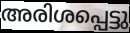
അരിശപ്പെട്ടു